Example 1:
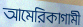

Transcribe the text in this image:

আমেরিকাগামী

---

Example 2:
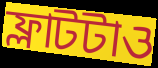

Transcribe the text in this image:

ফ্লাটটাও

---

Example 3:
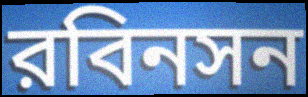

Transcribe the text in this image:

রবিনসন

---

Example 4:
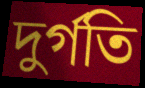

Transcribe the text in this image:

দুর্গতি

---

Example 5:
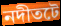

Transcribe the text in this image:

নদীতটে